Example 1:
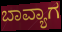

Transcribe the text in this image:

ಬಾವ್ಯಾಗ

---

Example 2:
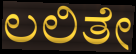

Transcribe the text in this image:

ಲಲಿತೇ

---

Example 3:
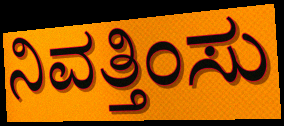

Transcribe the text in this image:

ನಿವತ್ತಿಂಸು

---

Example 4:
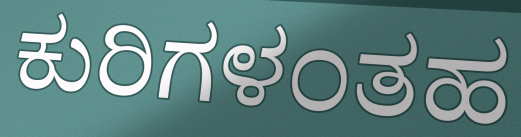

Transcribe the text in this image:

ಕುರಿಗಳಂತಹ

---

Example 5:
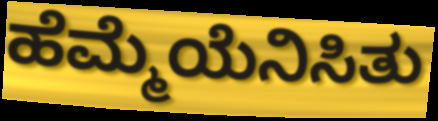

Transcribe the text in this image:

ಹೆಮ್ಮೆಯೆನಿಸಿತು